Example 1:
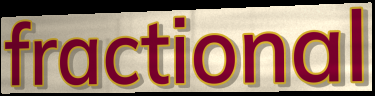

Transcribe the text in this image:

fractional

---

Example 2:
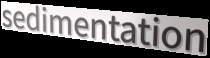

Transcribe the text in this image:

sedimentation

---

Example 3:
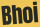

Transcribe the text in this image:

Bhoi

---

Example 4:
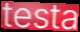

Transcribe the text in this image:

testa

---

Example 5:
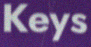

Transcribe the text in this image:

Keys